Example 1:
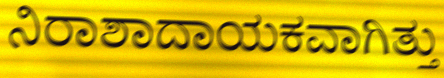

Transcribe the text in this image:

ನಿರಾಶಾದಾಯಕವಾಗಿತ್ತು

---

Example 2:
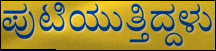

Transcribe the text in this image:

ಪುಟಿಯುತ್ತಿದ್ದಳು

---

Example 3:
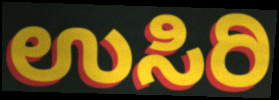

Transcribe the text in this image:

ಉಸಿರಿ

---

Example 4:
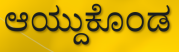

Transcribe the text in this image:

ಆಯ್ದುಕೊಂಡ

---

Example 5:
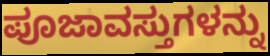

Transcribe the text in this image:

ಪೂಜಾವಸ್ತುಗಳನ್ನು